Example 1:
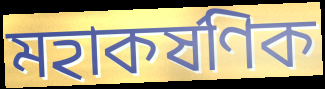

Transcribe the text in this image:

মহাকৰ্ষণিক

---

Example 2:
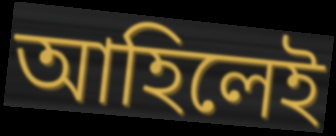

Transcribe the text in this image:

আহিলেই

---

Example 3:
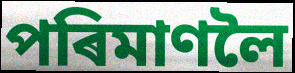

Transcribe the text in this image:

পৰিমাণলৈ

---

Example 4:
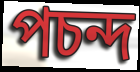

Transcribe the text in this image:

পচন্দ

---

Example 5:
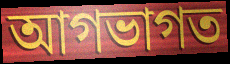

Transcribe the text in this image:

আগভাগত